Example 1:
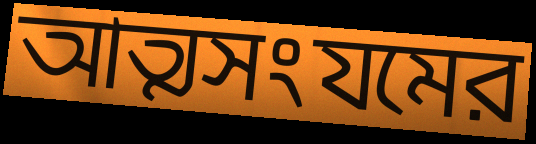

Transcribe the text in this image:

আত্মসংযমের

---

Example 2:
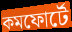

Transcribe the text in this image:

কমফোর্টে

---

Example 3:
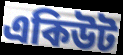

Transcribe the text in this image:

একিউট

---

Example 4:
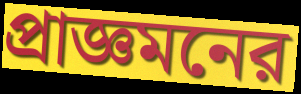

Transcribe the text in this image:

প্রাজ্ঞমনের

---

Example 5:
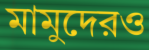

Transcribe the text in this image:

মামুদেরও